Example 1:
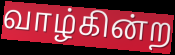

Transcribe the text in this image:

வாழ்கின்ற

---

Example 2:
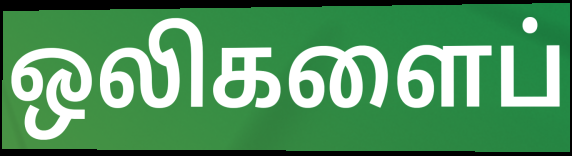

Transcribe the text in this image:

ஒலிகளைப்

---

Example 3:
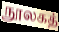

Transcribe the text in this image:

நூலகத்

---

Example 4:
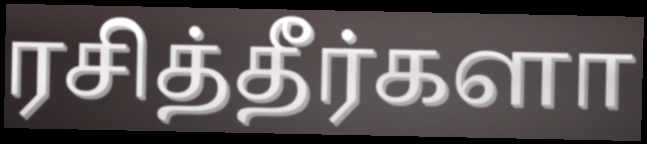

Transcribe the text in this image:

ரசித்தீர்களா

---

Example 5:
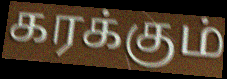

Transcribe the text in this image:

கரக்கும்